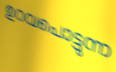
ഉറവപൊട്ടുന്ന